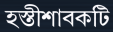
হস্তীশাবকটি